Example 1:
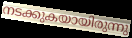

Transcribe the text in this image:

നടക്കുകയായിരുന്നു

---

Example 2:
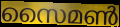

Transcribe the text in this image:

സൈമൺ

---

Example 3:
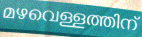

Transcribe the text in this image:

മഴവെള്ളത്തിന്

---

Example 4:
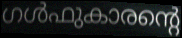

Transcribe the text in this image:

ഗൾഫുകാരന്റെ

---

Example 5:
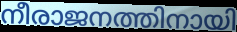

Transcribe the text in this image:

നീരാജനത്തിനായി